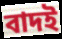
বাদই